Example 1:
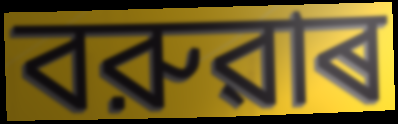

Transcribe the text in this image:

বৰুৱাৰ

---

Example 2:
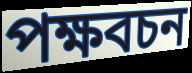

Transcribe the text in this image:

পক্ষবচন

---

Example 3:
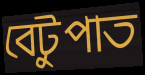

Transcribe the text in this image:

বেটুপাত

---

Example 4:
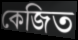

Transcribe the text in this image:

কেজিত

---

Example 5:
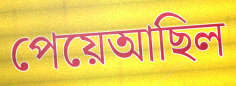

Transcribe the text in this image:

পেয়েআছিল